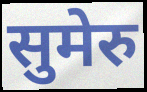
सुमेरु